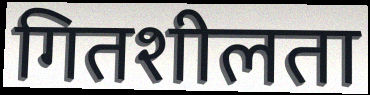
गितशीलता